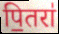
पि॒तरा॑